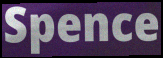
Spence